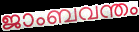
ജാംബവന്തം